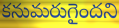
కనుమరుగైందని